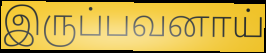
இருப்பவனாய்